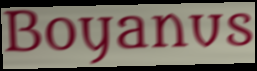
Boyanus